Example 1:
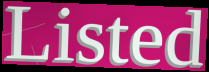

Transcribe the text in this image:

Listed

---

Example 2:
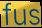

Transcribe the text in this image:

fus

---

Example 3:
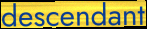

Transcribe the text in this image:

descendant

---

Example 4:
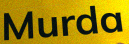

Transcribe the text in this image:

Murda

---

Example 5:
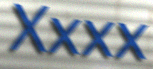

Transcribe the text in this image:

Xxxx